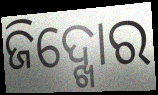
ଜିଦ୍ଖୋର